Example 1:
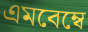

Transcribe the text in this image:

এমবেম্বে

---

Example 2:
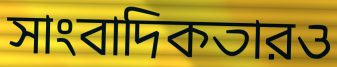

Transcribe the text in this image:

সাংবাদিকতারও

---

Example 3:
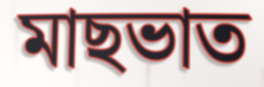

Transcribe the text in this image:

মাছভাত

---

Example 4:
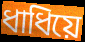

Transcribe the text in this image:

ধাধিয়ে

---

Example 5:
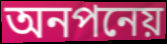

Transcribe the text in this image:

অনপনেয়